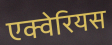
एक्वेरियस